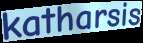
katharsis